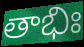
తాభిః